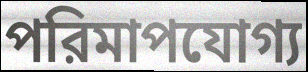
পরিমাপযোগ্য